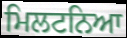
ਮਿਲਟਨਿਆ